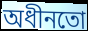
অধীনতো